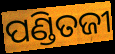
ପଣ୍ଡିତଜୀ